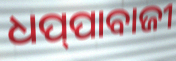
ଧପ୍‌ପାବାଜୀ